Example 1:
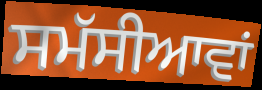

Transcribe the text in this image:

ਸਮੱਸੀਆਵਾਂ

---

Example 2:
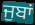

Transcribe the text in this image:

ਜੁਬਾਂ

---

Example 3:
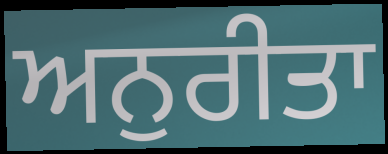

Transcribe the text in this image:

ਅਨੁਰੀਤਾ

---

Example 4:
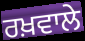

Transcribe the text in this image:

ਰਖ਼ਵਾਲੇ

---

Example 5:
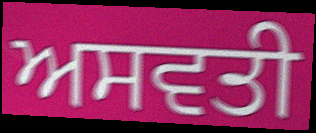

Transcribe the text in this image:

ਅਸਵਤੀ